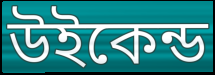
উইকেন্ড